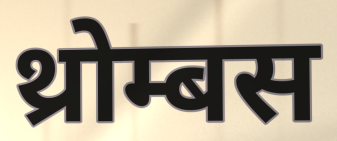
थ्रोम्बस